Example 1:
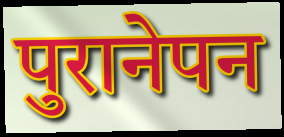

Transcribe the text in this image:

पुरानेपन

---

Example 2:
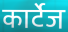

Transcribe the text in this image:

कार्टेज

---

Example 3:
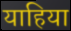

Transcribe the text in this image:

याहिया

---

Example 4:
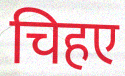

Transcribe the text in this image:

चिहए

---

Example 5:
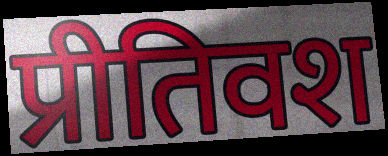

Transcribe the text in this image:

प्रीतिवश